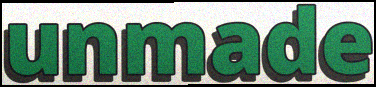
unmade